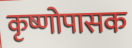
कृष्णोपासक